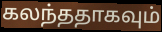
கலந்ததாகவும்